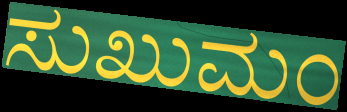
ಸುಖುಮಂ